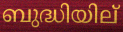
ബുദ്ധിയില്